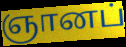
ஞானப்